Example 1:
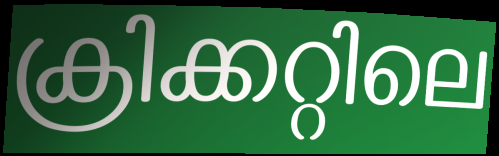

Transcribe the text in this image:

ക്രിക്കറ്റിലെ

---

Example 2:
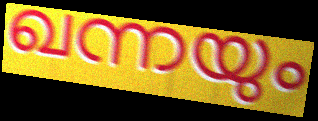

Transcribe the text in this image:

ഖന്നയും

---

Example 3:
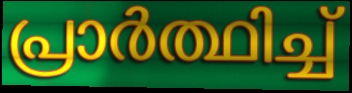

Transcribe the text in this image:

പ്രാർത്ഥിച്ച്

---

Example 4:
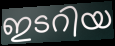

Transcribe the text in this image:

ഇടറിയ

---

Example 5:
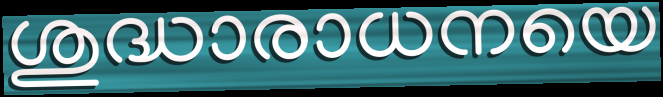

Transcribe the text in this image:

ശുദ്ധാരാധനയെ